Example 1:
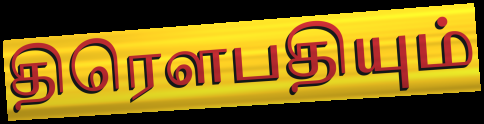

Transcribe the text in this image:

திரெளபதியும்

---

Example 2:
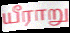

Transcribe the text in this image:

யீராறு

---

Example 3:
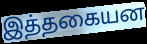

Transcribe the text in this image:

இத்தகையன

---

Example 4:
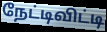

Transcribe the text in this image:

நேட்டிவிட்டி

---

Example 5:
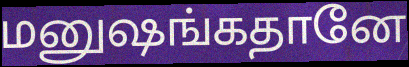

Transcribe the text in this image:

மனுஷங்கதானே